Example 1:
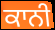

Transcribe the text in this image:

ਕਾਨੀ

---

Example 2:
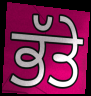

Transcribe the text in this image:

ਭੱਤੇ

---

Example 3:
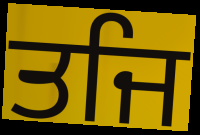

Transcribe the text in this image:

ਤਜਿ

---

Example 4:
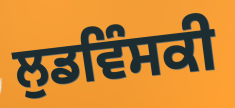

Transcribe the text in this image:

ਲੁਡਵਿੰਸਕੀ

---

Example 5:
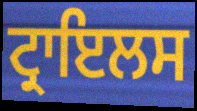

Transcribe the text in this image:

ਟ੍ਰਾਇਲਸ